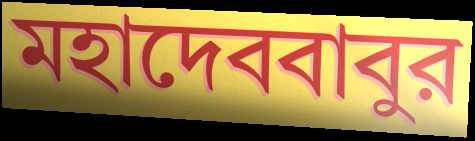
মহাদেববাবুর